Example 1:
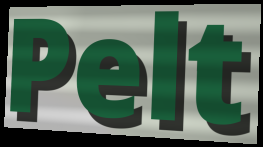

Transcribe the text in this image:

Pelt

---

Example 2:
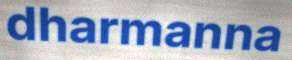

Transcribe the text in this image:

dharmanna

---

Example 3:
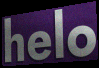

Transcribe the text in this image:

helo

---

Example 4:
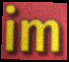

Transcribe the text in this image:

im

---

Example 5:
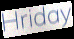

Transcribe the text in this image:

Hriday